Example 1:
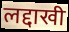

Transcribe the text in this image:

लद्दाखी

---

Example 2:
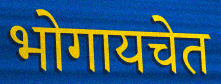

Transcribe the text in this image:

भोगायचेत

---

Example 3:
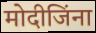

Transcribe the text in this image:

मोदीजिंना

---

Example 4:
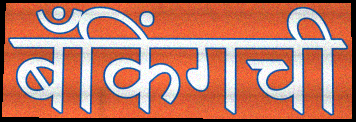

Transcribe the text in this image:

बँकिंगची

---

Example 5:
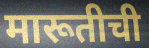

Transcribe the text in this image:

मारूतीची